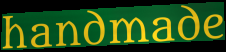
handmade